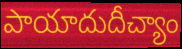
పాయాదుదీచ్యాం